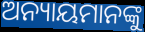
ଅନ୍ୟାୟମାନଙ୍କୁ